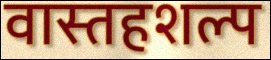
वास्तहशल्प